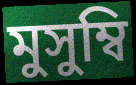
মুসুম্বি